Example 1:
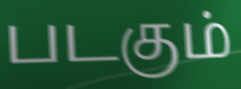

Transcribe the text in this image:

படகும்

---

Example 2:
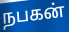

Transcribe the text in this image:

நபகன்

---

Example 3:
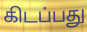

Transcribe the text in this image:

கிடப்பது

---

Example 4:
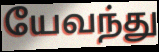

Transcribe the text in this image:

யேவந்து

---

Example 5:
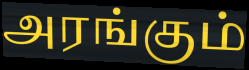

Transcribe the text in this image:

அரங்கும்